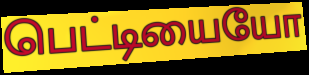
பெட்டியையோ